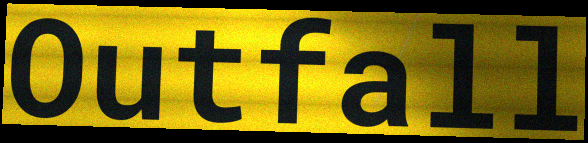
Outfall